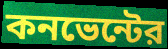
কনভেন্টের